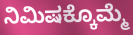
ನಿಮಿಷಕ್ಕೊಮ್ಮೆ